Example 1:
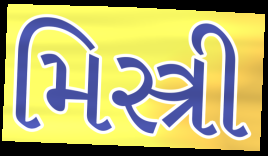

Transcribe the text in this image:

મિસ્ત્રી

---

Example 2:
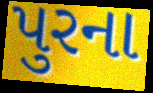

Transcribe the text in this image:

પુરના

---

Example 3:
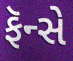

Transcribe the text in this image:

ફૅન્સે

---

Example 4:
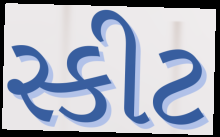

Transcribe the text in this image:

સ્કીટ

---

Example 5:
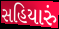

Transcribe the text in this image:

સહિયારું